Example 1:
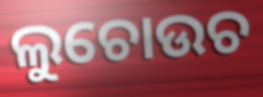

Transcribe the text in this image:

ଲୁଚୋଉଚ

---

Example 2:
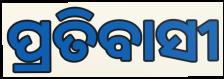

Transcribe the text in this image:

ପ୍ରତିବାସୀ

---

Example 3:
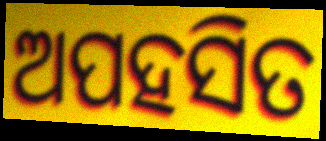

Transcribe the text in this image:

ଅପହସିତ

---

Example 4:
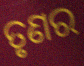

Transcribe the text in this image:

ତୃଣର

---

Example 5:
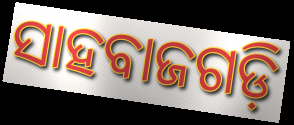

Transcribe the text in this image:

ସାହବାଜଗଡ଼ି